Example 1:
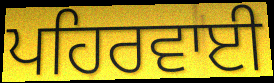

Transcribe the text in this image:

ਪਹਿਰਵਾਈ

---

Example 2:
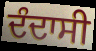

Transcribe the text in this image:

ਦੰਦਾਸੀ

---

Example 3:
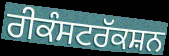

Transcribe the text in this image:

ਰੀਕੰਸਟਰੱਕਸ਼ਨ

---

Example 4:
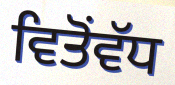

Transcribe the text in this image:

ਵਿਤੋਂਵੱਧ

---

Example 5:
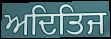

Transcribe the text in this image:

ਅਦਿਤਿਜ